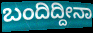
ಬಂದಿದ್ದೀನಾ